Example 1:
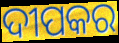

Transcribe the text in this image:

ଦୀପକର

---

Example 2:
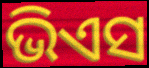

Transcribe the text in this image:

ଭିଏସ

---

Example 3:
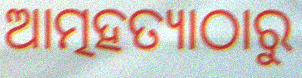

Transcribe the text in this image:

ଆତ୍ମହତ୍ୟାଠାରୁ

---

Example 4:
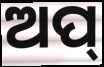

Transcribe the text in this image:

ଅପ୍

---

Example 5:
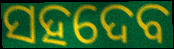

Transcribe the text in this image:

ସହଦେବ